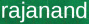
rajanand